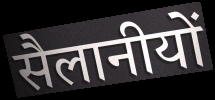
सैलानीयों